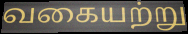
வகையற்று